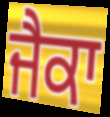
ਜੈਕਾ